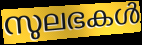
സുലഭകൾ